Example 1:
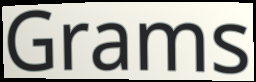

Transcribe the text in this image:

Grams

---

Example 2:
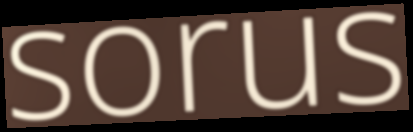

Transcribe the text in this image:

sorus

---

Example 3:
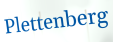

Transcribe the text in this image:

Plettenberg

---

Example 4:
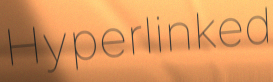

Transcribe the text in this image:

Hyperlinked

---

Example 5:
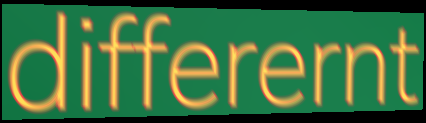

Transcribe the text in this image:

differernt